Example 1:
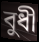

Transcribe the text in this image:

বুধী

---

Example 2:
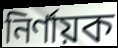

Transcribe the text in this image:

নির্ণায়ক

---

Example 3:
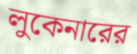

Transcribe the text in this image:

লুকেনারের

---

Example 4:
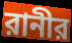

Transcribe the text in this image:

রানীর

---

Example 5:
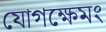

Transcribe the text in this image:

যোগক্ষেমং